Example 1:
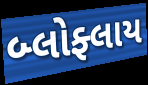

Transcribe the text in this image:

બ્લોફ્લાય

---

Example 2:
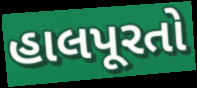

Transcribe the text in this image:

હાલપૂરતો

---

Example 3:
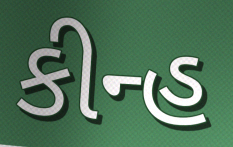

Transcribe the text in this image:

કીન્હ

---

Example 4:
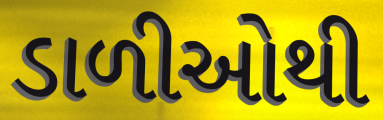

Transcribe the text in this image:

ડાળીઓથી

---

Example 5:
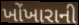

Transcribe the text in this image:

ખોંખારાની